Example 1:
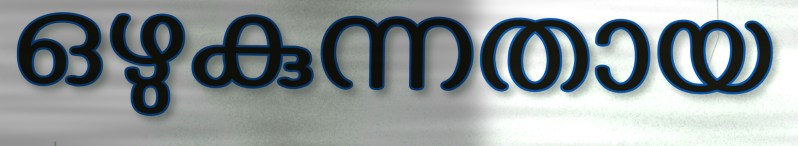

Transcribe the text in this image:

ഒഴുകുന്നതായ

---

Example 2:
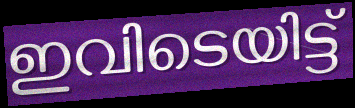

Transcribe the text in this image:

ഇവിടെയിട്ട്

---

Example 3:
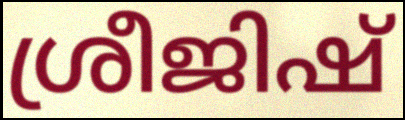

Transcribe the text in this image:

ശ്രീജിഷ്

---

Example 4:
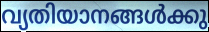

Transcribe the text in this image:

വ്യതിയാനങ്ങൾക്കു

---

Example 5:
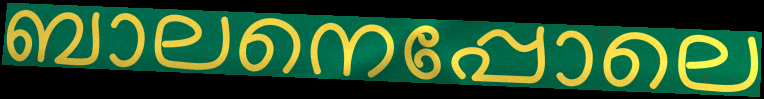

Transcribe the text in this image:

ബാലനെപ്പോലെ